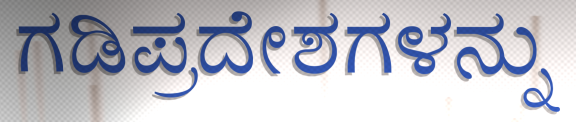
ಗಡಿಪ್ರದೇಶಗಳನ್ನು